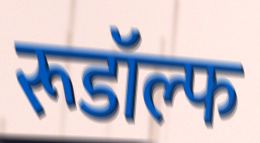
रूडॉल्फ